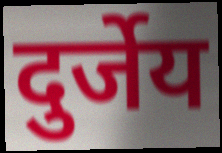
दुर्जेय